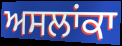
ਅਸਲਾਂਕਾ